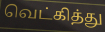
வெட்கித்து